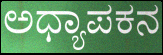
ಅಧ್ಯಾಪಕನ